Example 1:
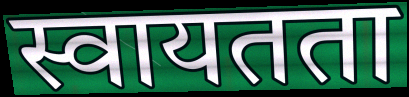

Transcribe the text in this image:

स्वायतता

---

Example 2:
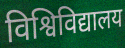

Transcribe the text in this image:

विश्विविद्यालय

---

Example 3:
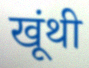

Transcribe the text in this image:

खूंथी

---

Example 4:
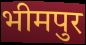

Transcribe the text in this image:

भीमपुर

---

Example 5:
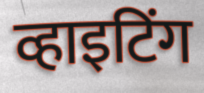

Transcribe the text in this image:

व्हाइटिंग